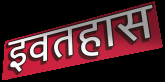
इवतहास